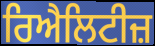
ਰਿਐਲਿਟੀਜ਼